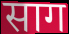
साग